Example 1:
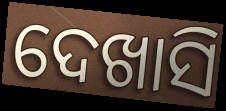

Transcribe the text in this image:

ଦେଖାସି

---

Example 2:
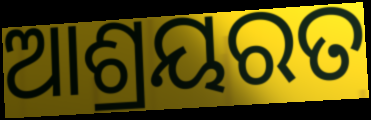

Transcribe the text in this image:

ଆଶ୍ରୟରତ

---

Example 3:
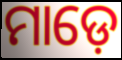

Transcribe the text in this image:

ମାଡ଼େ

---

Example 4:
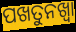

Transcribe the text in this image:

ପଖତୁନଖ୍ୱା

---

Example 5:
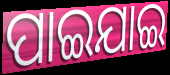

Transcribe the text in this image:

ପାଇଯାଇ